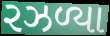
રઝળ્યા